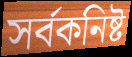
সর্বকনিষ্ট